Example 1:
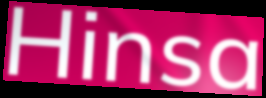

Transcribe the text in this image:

Hinsa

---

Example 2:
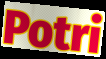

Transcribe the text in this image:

Potri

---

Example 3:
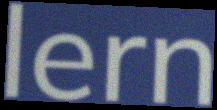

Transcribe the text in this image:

lern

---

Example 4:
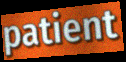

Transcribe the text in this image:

patient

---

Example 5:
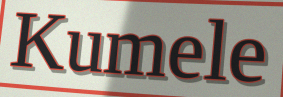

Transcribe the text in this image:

Kumele